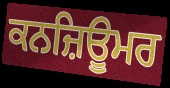
ਕਨਜ਼ਿਊਮਰ